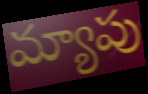
మ్యాపు